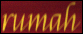
rumah